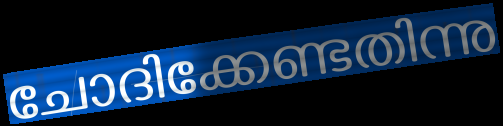
ചോദിക്കേണ്ടതിന്നു